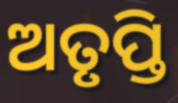
ଅତୃପ୍ତି